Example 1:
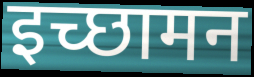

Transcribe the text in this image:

इच्छामन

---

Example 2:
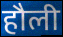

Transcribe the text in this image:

हौली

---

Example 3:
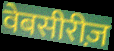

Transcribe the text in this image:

वेबसीरीज़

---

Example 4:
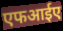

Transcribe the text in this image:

एफआईए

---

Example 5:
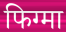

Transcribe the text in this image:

फिग्मा